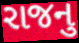
રાજનુ